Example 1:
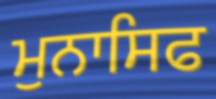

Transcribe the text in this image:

ਮੁਨਾਸਿਫ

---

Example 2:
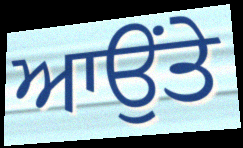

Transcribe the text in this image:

ਆਉਂਤੇ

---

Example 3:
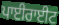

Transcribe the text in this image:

ਪਾਈਰਾਈਟ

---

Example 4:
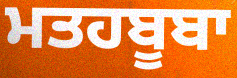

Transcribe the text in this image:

ਮਤਹਬੂਬਾ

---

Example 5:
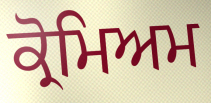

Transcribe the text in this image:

ਕ੍ਰੋਮਿਅਮ